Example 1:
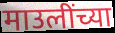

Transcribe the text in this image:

माउलींच्या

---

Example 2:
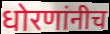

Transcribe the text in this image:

धोरणांनीच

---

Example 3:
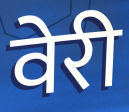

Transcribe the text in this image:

वेरी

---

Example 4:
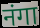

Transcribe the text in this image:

नंगा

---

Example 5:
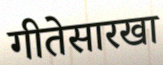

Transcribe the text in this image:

गीतेसारखा